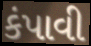
કંપાવી